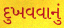
દુખવવાનું